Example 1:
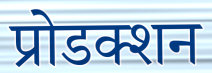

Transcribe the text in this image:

प्रोडक्शन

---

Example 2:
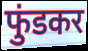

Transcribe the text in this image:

फुंडकर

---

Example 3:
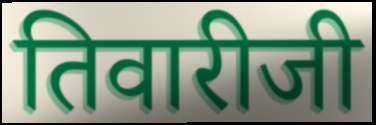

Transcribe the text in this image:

तिवारीजी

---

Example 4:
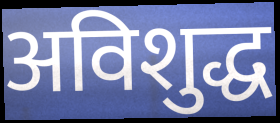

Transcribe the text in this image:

अविशुद्ध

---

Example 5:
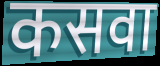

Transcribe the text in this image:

कसवा